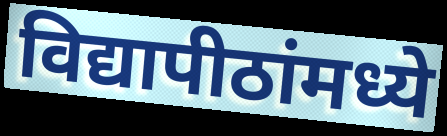
विद्यापीठांमध्ये